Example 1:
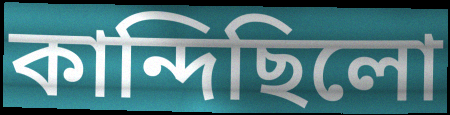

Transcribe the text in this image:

কান্দিছিলো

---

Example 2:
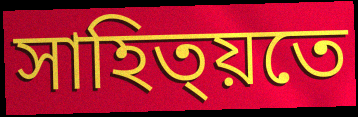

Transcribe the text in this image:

সাহিত্য়তে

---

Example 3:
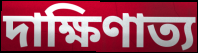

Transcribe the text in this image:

দাক্ষিণাত্য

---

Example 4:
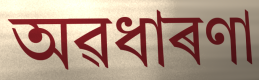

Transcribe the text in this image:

অৱধাৰণা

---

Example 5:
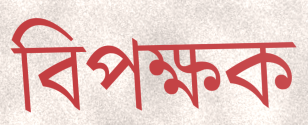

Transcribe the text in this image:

বিপক্ষক